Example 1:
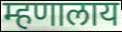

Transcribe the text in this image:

म्हणालाय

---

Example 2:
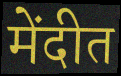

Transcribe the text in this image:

मेंदीत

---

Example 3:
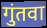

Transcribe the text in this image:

गुंतवा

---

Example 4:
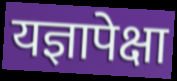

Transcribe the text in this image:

यज्ञापेक्षा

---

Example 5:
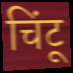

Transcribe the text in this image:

चिंटू